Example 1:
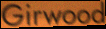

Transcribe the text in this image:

Girwood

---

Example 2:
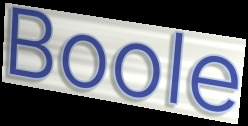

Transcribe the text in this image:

Boole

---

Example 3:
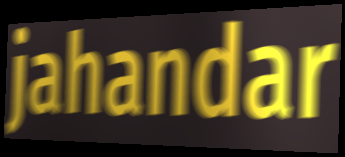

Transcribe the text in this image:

jahandar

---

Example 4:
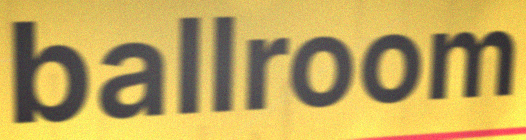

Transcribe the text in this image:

ballroom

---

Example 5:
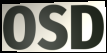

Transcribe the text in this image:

OSD